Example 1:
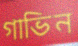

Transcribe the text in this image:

গাভিন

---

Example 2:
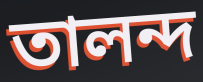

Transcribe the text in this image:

তালন্দ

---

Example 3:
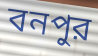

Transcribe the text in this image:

বনপুর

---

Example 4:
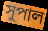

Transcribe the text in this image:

সুপাল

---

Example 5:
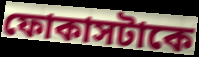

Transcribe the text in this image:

ফোকাসটাকে